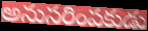
అనుసరింపకుడు